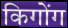
किगोंग